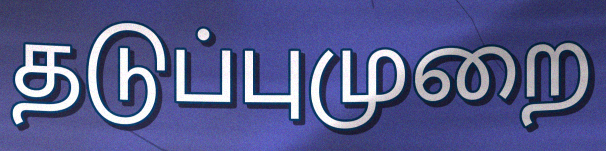
தடுப்புமுறை